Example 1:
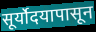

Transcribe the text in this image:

सूर्योदयापासून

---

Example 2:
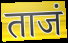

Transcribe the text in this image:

ताजं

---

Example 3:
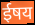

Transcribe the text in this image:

ईषय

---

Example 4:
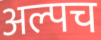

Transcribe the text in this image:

अल्पच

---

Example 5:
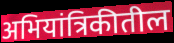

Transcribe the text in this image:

अभियांत्रिकीतील